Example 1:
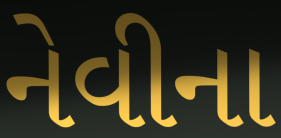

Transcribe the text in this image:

નેવીના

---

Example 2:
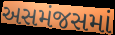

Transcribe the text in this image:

અસમંજસમાં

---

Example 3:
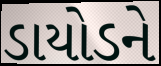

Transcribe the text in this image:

ડાયોડને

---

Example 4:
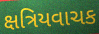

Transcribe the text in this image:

ક્ષત્રિયવાચક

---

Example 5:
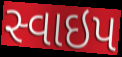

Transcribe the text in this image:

સ્વાઇપ